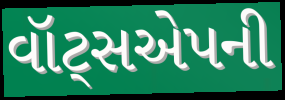
વૉટ્સએપની